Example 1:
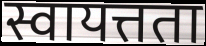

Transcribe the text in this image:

स्वायत्तता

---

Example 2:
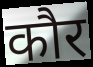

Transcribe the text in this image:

कौर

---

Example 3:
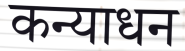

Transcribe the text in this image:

कन्याधन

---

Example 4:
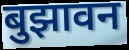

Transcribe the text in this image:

बुझावन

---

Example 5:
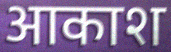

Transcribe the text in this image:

आकाश